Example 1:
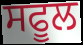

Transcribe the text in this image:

ਸਫੂਲ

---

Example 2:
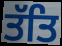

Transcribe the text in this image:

ਤੱਤਿ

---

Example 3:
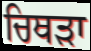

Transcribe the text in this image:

ਚਿਥੜਾ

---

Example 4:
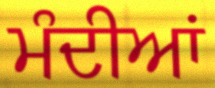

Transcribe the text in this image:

ਮੰਦੀਆਂ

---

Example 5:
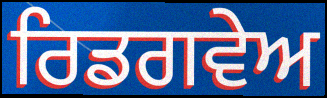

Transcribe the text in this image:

ਰਿਡਗਵੇਅ